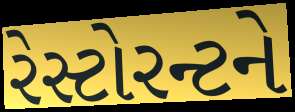
રેસ્ટોરન્ટને